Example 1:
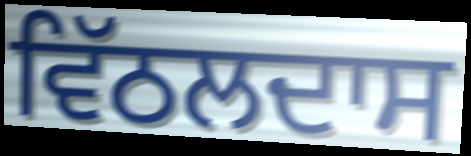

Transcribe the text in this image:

ਵਿੱਠਲਦਾਸ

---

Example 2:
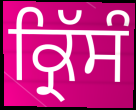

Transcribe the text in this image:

ਕ੍ਰਿੱਸੰ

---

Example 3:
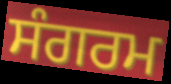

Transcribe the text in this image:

ਸੰਗਰਮ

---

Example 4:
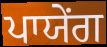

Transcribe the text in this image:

ਪਾਯੇਂਗ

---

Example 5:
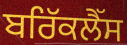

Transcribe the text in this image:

ਬਰਿੱਕਲੈੱਸ